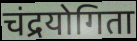
चंद्रयोगिता